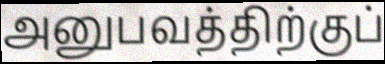
அனுபவத்திற்குப்